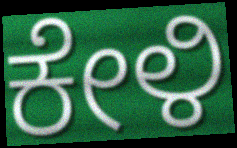
ಕೇಳಿ